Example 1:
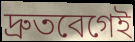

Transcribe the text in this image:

দ্রুতবেগেই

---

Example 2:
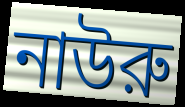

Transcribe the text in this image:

নাউরু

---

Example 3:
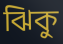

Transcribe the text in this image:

ঝিকু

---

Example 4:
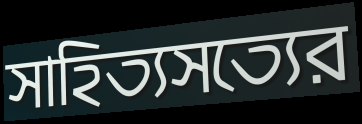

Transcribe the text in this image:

সাহিত্যসত্যের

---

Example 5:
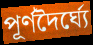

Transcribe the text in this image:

পূর্ণদৈর্ঘ্যে